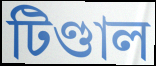
টিণ্ডাল